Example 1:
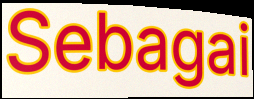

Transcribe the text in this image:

Sebagai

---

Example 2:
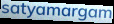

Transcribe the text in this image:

satyamargam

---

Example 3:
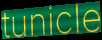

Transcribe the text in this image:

tunicle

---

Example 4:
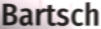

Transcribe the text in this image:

Bartsch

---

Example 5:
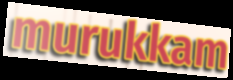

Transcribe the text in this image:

murukkam